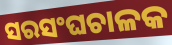
ସରସଂଘଚାଳକ